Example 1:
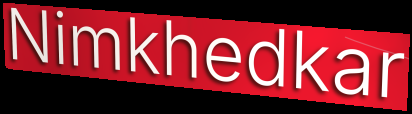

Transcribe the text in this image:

Nimkhedkar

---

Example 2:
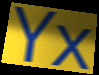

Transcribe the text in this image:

Yx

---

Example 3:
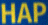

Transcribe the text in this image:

HAP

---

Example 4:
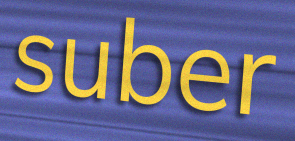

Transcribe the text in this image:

suber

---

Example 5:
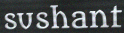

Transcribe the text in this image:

sushant